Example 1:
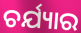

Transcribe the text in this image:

ଚର୍ଯ୍ୟାର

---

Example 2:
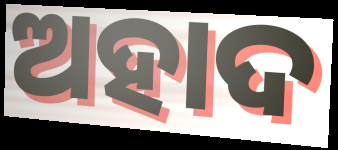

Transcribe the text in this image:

ଅହାଦ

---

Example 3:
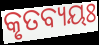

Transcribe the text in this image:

କୃତବ୍ୟୟଃ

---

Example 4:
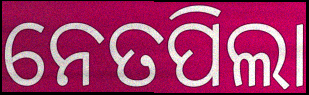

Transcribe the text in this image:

ନେତପିଲା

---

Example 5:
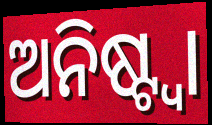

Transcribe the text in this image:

ଅନିଷ୍ଟ୍ୱା